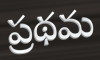
ప్రథమ